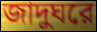
জাদুঘরে